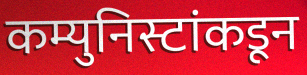
कम्युनिस्टांकडून